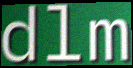
dlm